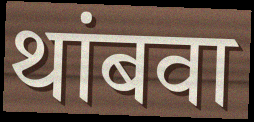
थांबवा